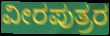
ವೀರಪುತ್ರರ